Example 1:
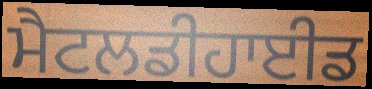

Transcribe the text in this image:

ਮੈਟਲਡੀਹਾਈਡ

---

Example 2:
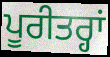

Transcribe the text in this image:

ਪੂਰੀਤਰ੍ਹਾਂ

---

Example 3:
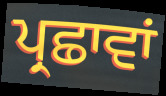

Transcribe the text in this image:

ਪ੍ਰਛਾਵਾਂ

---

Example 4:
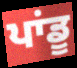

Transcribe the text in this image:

ਪਾਂਡੂ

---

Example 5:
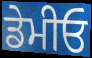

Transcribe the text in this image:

ਡੇਮੀਓ